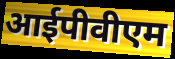
आईपीवीएम